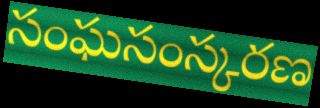
సంఘసంస్కరణ